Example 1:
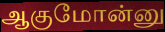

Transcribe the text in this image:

ஆகுமோன்னு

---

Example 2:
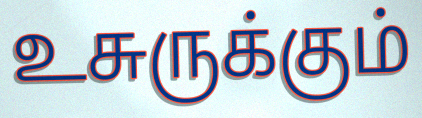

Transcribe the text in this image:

உசுருக்கும்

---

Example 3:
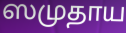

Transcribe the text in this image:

ஸமுதாய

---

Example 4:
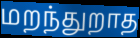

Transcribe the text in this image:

மறந்துறாத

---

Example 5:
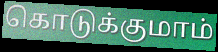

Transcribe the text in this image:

கொடுக்குமாம்